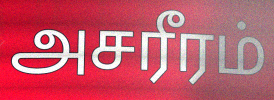
அசரீரம்